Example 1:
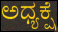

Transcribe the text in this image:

ಅಧ್ಯಕ್ಷೆ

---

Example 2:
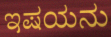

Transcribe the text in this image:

ಇಷಯನು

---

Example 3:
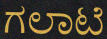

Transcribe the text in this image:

ಗಲಾಟೆ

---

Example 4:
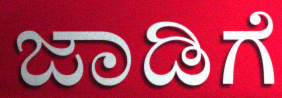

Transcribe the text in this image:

ಜಾಡಿಗೆ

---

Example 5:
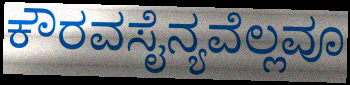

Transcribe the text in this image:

ಕೌರವಸೈನ್ಯವೆಲ್ಲವೂ